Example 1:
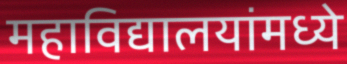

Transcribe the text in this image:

महाविद्यालयांमध्ये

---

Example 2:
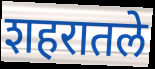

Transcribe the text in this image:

शहरातले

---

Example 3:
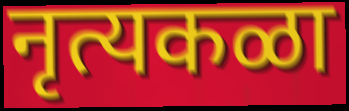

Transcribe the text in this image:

नृत्यकळा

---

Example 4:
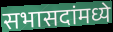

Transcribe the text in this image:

सभासदांमध्ये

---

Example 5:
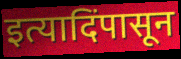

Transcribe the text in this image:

इत्यादिंपासून